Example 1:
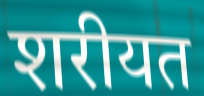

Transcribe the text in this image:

शरीयत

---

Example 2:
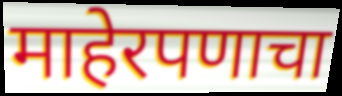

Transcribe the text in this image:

माहेरपणाचा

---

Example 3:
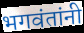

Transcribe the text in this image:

भगवंतांनी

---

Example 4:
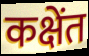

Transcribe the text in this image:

कक्षेंत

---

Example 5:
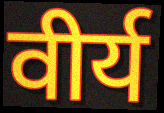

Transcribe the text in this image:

वीर्य